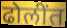
ढोलींत